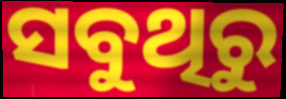
ସବୁଥିରୁ